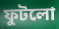
ফুটলো